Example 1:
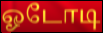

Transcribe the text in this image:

ஓடோடி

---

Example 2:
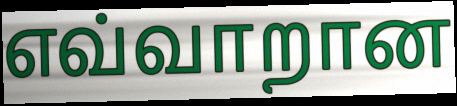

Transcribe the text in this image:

எவ்வாறான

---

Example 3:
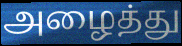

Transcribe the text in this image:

அழைத்து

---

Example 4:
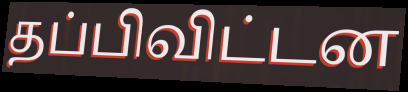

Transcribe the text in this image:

தப்பிவிட்டன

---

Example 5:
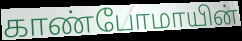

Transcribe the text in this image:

காண்போமாயின்